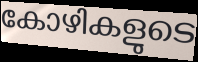
കോഴികളുടെ